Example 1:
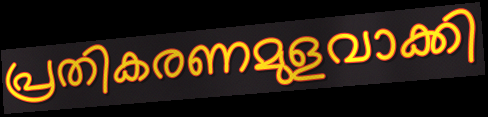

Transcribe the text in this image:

പ്രതികരണമുളവാക്കി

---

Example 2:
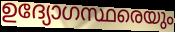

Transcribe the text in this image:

ഉദ്യോഗസ്ഥരെയും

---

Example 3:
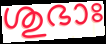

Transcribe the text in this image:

ശുഭാഃ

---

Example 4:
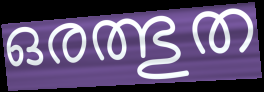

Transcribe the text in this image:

ഒരത്ഭുത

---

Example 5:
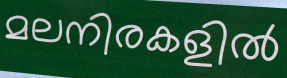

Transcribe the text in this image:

മലനിരകളിൽ